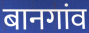
बानगांव